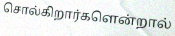
சொல்கிறார்களென்றால்